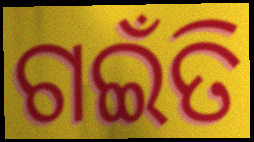
ଗଇଁତି